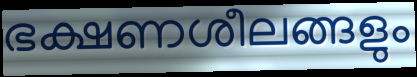
ഭക്ഷണശീലങ്ങളും